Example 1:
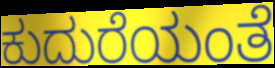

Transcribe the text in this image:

ಕುದುರೆಯಂತೆ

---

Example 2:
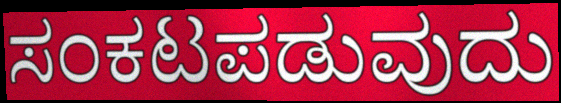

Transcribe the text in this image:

ಸಂಕಟಪಡುವುದು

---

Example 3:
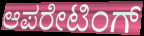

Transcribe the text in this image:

ಆಪರೇಟಿಂಗ್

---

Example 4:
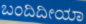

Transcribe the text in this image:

ಬಂದಿದೀಯಾ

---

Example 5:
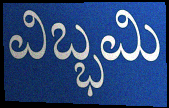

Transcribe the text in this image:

ವಿಬ್ಭಮಿ